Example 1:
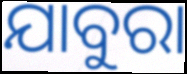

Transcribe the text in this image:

ଯାବୁରା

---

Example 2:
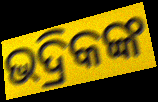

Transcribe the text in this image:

ଭଦ୍ରିକଙ୍କ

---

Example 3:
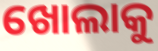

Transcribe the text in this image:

ଖୋଲାକୁ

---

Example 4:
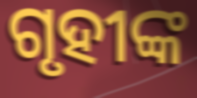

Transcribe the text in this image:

ଗୃହୀଙ୍କ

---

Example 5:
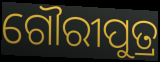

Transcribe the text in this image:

ଗୌରୀପୁତ୍ର